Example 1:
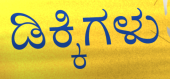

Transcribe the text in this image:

ಡಿಕ್ಕಿಗಳು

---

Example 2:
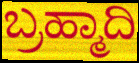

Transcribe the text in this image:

ಬ್ರಹ್ಮಾದಿ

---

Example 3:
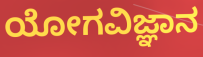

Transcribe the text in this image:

ಯೋಗವಿಜ್ಞಾನ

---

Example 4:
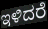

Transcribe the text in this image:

ಇಳಿದರೆ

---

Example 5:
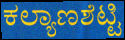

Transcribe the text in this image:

ಕಲ್ಯಾಣಶೆಟ್ಟಿ